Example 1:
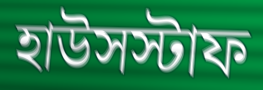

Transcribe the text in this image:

হাউসস্টাফ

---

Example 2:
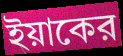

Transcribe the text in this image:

ইয়াকের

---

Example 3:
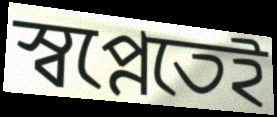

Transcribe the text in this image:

স্বপ্নেতেই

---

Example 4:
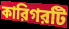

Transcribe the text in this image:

কারিগরটি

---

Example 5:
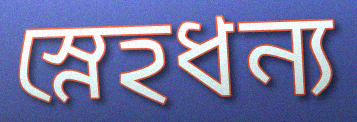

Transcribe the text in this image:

স্নেহধন্য